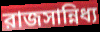
রাজসান্নিধ্য